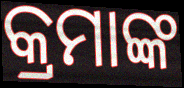
କ୍ରମାଙ୍କ